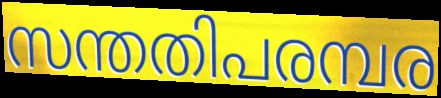
സന്തതിപരമ്പര